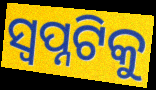
ସ୍ୱପ୍ନଟିକୁ